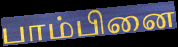
பாம்பினை